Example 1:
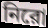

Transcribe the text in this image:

নিরো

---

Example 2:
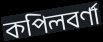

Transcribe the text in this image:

কপিলবর্ণা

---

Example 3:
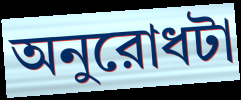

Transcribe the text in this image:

অনুরোধটা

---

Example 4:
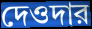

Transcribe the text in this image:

দেওদার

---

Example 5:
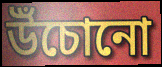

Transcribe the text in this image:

উঁচোনো